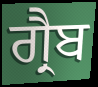
ਗ੍ਰੈਬ